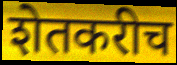
शेतकरीच